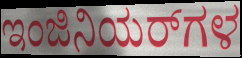
ಇಂಜಿನಿಯರ್‌ಗಳ